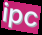
ipc